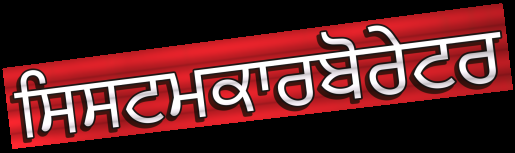
ਸਿਸਟਮਕਾਰਬੋਰੇਟਰ